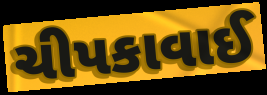
ચીપકાવાઈ